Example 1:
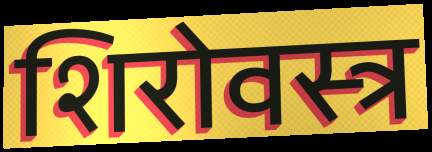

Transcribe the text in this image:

शिरोवस्त्र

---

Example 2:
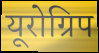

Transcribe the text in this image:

यूरोग्रिप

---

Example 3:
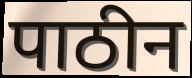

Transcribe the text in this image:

पाठीन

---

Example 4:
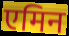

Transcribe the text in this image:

एमिन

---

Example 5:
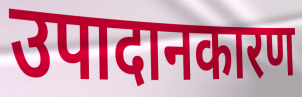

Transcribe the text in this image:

उपादानकारण